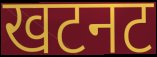
खटनट